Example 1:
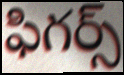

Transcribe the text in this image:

ఫిగర్స్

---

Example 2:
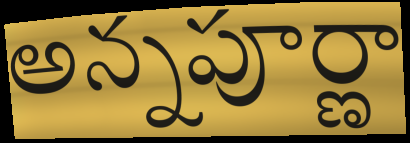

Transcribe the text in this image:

అన్నపూర్ణా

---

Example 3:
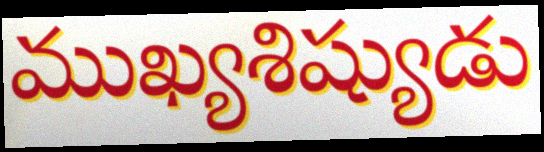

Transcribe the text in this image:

ముఖ్యశిష్యుడు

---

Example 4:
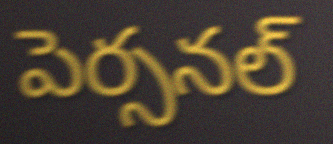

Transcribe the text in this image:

పెర్సనల్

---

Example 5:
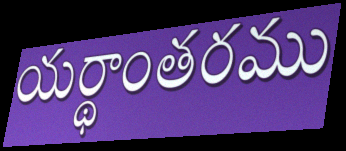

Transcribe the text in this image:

యర్థాంతరము